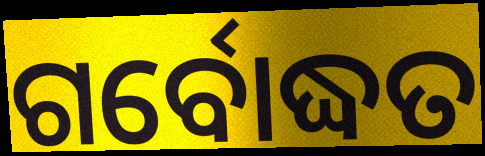
ଗର୍ବୋଦ୍ଧତ